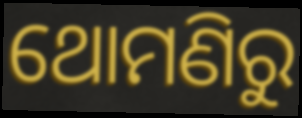
ଥୋମଣିରୁ